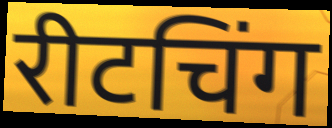
रीटचिंग